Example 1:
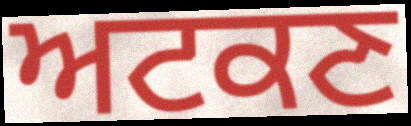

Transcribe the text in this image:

ਅਟਕਣ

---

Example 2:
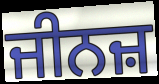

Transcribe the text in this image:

ਜੀਨਜ਼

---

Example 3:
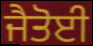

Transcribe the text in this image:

ਜੈਤੋਈ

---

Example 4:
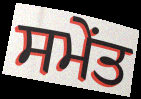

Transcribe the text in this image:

ਸਮੇਂਤ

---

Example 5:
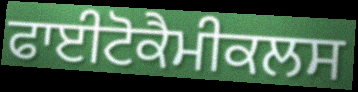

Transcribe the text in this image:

ਫਾਈਟੋਕੈਮੀਕਲਸ